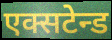
एक्सटेन्ड